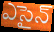
ఎసైన్